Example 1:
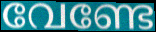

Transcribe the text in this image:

വേണ്ടേ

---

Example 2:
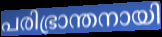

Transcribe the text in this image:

പരിഭ്രാന്തനായി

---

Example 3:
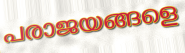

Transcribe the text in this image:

പരാജയങ്ങളെ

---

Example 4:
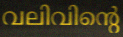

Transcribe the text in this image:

വലിവിന്റെ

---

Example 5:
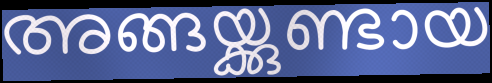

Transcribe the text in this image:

അങ്ങയ്ക്കുണ്ടായ